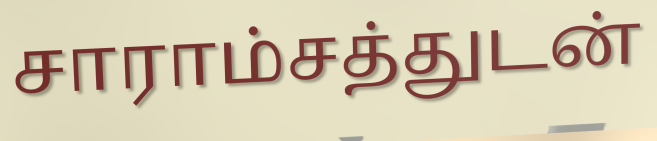
சாராம்சத்துடன்